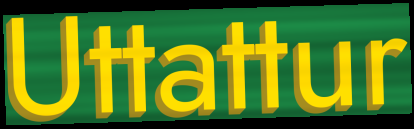
Uttattur